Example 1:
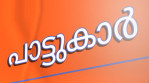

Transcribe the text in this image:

പാട്ടുകാർ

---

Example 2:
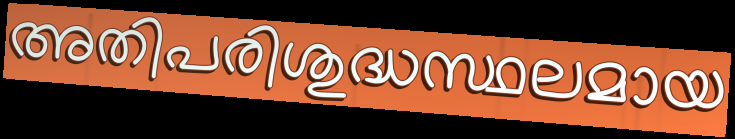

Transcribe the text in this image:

അതിപരിശുദ്ധസ്ഥലമായ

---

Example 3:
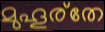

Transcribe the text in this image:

മുഹൂര്തേ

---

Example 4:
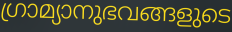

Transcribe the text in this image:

ഗ്രാമ്യാനുഭവങ്ങളുടെ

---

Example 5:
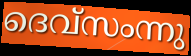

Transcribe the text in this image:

ദെവ്സംന്നു